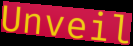
Unveil